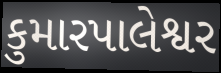
કુમારપાલેશ્વર